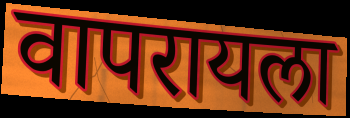
वापरायला